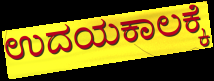
ಉದಯಕಾಲಕ್ಕೆ